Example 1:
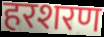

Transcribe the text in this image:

हरशरण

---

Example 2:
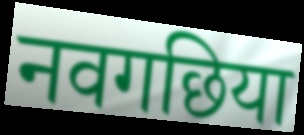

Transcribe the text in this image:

नवगछिया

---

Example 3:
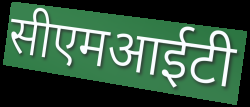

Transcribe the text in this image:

सीएमआईटी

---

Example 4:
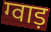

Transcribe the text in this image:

ग्वाड़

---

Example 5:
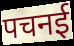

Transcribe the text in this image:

पचनई